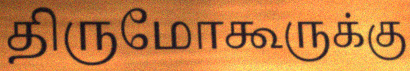
திருமோகூருக்கு